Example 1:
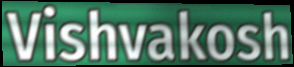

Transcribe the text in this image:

Vishvakosh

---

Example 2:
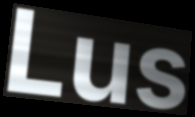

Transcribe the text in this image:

Lus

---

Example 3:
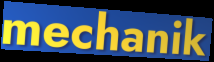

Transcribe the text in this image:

mechanik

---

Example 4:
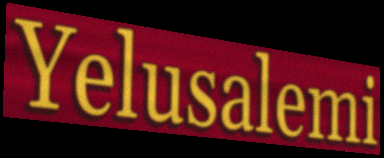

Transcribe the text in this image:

Yelusalemi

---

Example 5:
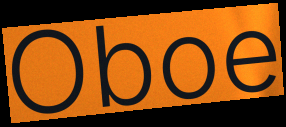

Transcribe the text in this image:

Oboe